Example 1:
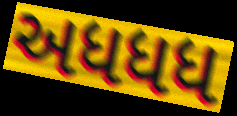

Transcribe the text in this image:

અધધધ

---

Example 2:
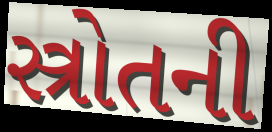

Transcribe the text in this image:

સ્ત્રોતની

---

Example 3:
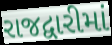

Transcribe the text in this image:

રાજદ્વારીમાં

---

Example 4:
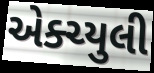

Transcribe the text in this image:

એક્ચ્યુલી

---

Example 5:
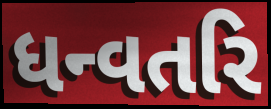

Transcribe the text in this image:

ધન્વતરિ